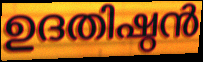
ഉദതിഷ്ഠൻ